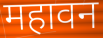
महावन